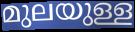
മുലയുള്ള